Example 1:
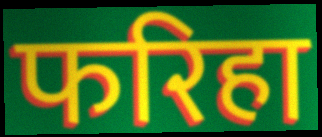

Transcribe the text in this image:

फरिहा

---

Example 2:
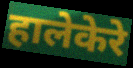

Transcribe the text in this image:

हालेकेरे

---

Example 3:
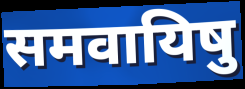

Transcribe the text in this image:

समवायिषु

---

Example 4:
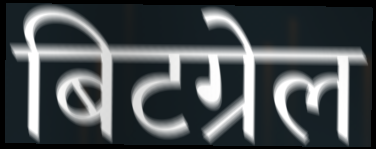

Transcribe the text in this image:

बिटग्रेल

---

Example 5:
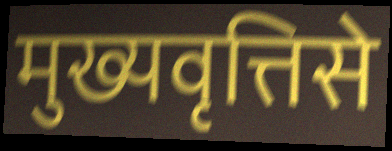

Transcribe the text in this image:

मुख्यवृत्तिसे